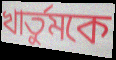
খার্তুমকে